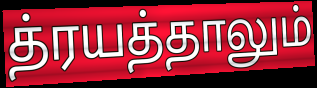
த்ரயத்தாலும்